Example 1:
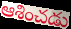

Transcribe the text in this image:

ఆశించడు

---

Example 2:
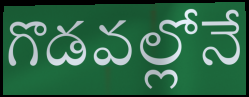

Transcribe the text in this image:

గొడవల్లోనే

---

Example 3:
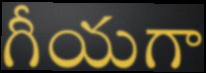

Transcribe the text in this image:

గీయగా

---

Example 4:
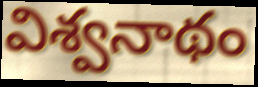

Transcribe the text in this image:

విశ్వనాథం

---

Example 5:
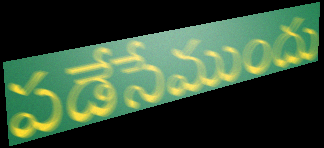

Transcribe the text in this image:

పడేసేముందు